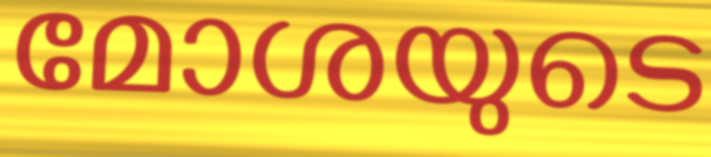
മോശയുടെ